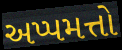
અપ્પમત્તો